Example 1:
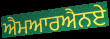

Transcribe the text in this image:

ਐਮਆਰਐਨਏ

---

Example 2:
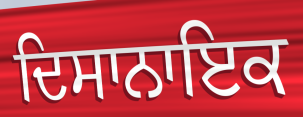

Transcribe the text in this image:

ਦਿਸਾਨਾਇਕ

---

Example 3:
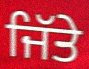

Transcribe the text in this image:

ਜਿੱਤੇ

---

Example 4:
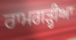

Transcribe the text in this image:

ਰਾਮਗੜ੍ਹੀਆ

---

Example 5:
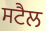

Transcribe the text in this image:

ਸਟੈਲ